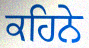
ਕਹਿਨੇ